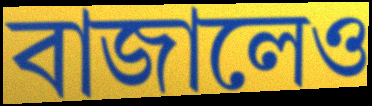
বাজালেও